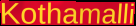
Kothamalli